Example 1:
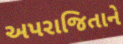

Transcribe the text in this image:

અપરાજિતાને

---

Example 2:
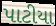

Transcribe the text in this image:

પાટીયા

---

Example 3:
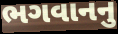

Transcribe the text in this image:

ભગવાનનુ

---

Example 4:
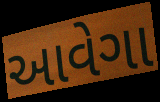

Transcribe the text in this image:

આવેગા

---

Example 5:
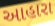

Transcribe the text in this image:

આહારા